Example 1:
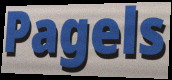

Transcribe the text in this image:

Pagels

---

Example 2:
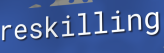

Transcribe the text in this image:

reskilling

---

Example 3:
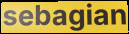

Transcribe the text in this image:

sebagian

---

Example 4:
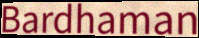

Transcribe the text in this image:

Bardhaman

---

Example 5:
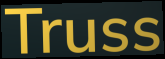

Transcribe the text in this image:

Truss